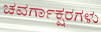
ಚವರ್ಗಾಕ್ಷರಗಳು